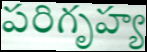
పరిగృహ్య